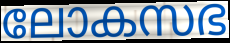
ലോകസഭ